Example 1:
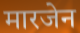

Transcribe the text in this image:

मारजेन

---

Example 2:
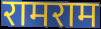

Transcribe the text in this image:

रामराम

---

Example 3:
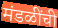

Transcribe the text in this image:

मंडळींची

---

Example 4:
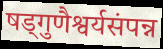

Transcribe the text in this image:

षड्‌गुणैश्वर्यसंपन्न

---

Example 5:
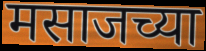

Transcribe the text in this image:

मसाजच्या